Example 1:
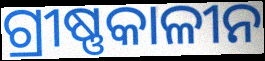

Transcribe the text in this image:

ଗ୍ରୀଷ୍ଣକାଳୀନ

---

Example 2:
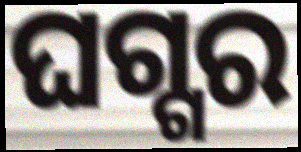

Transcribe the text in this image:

ଘଗ୍ଗର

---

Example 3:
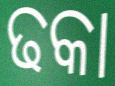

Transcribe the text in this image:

ଢକା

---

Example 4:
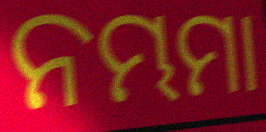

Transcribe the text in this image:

ନମ୍ଭମା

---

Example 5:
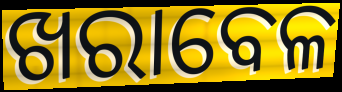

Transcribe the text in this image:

ଖରାବେଳ